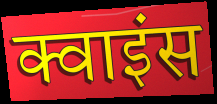
क्वाइंस